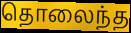
தொலைந்த